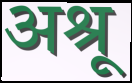
अश्रू